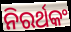
ନିରର୍ଥକଂ